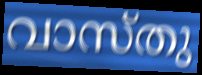
വാസ്തു